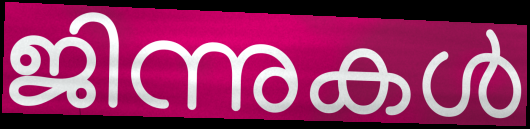
ജിന്നുകൾ